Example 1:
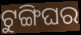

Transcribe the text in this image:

ଟୁଙ୍ଗିଘର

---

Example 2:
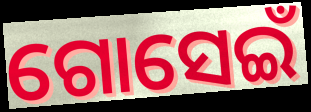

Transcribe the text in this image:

ଗୋସେଇଁ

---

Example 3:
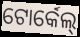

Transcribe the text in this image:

ଟୋର୍କେଲ୍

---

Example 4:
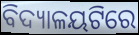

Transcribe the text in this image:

ବିଦ୍ୟାଳୟଟିରେ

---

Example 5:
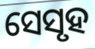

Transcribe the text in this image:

ସେସୃହ